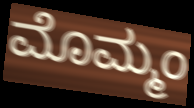
ಮೊಮ್ಮಂ